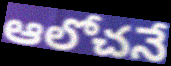
ఆలోచనే